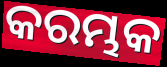
କରମ୍ଭକ